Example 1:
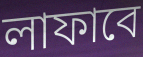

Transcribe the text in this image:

লাফাবে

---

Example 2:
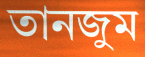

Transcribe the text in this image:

তানজুম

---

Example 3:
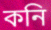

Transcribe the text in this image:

কনি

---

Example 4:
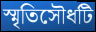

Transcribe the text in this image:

স্মৃতিসৌধটি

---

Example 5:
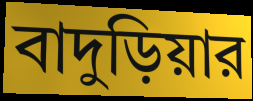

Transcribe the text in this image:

বাদুড়িয়ার